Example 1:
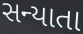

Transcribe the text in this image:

સન્યાતા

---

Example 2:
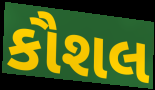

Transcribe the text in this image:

કૌશલ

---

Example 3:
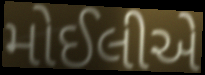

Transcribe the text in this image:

મોઈલીએ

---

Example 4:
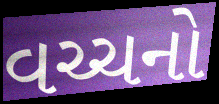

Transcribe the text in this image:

વચ્ચનો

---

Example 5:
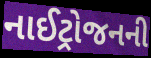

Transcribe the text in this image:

નાઈટ્રોજનની